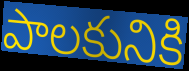
పాలకునికి